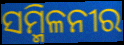
ସମ୍ମିଳନୀର